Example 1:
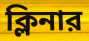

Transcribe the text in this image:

ক্লিনার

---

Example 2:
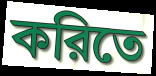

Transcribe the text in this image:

করিতে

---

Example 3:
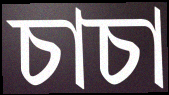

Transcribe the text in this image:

চাচা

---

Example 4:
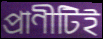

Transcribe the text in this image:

প্রাণীটিই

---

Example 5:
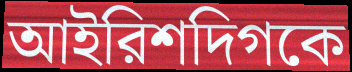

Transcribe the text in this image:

আইরিশদিগকে